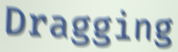
Dragging